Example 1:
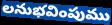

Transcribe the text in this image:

లనుభవింపుము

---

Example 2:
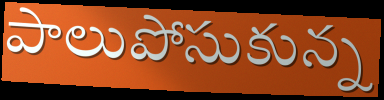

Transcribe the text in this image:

పాలుపోసుకున్న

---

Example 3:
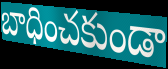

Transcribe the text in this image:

బాధించకుండా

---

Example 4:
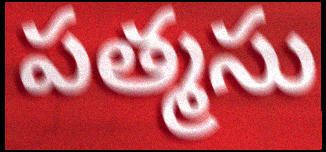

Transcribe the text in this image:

పత్మసు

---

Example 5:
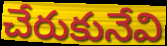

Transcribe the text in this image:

చేరుకునేవి